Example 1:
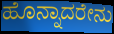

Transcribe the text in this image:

ಹೊನ್ನಾದರೇನು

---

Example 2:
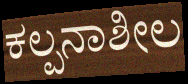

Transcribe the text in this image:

ಕಲ್ಪನಾಶೀಲ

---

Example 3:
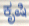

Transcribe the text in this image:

ಕೃಷಿ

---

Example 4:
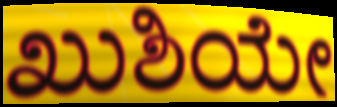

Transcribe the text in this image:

ಖುಶಿಯೇ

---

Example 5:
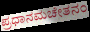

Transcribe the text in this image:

ಪ್ರಧಾನಮಚೇತನಂ